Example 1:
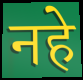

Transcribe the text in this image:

नहे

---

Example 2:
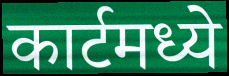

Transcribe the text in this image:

कार्टमध्ये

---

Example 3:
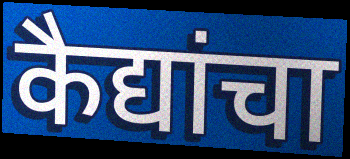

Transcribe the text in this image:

कैद्यांचा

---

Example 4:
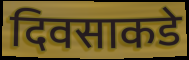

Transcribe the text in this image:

दिवसाकडे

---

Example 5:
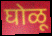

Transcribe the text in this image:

घोळू